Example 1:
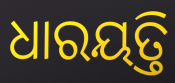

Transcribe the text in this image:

ଧାରୟତ୍ତି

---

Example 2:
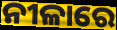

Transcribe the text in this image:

ନୀଳାରେ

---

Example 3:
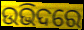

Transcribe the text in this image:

ଉଭିଦରେ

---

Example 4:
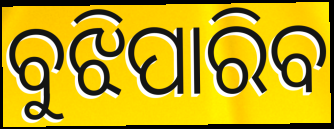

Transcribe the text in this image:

ବୁଝିପାରିବ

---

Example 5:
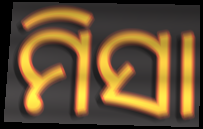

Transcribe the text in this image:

ମିସା